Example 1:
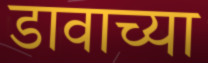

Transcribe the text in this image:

डावाच्या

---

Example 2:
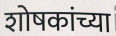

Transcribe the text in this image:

शोषकांच्या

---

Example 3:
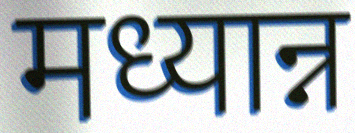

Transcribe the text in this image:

मध्यान्न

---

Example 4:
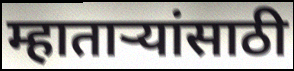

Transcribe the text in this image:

म्हाताऱ्यांसाठी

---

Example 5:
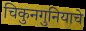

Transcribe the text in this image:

चिकुनगुनियाचे